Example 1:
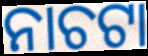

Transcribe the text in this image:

ନାଚଟା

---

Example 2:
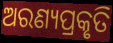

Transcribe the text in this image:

ଅରଣ୍ୟପ୍ରକୃତି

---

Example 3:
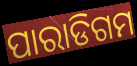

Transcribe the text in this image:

ପାରାଡିଗମ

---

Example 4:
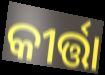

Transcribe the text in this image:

କୀର୍ତ୍ତା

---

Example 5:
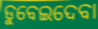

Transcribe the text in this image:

ଡୁବେଇଦେବା